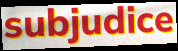
subjudice